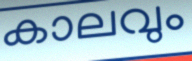
കാലവും